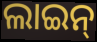
ଲାଇନ୍